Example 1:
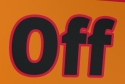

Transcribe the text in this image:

Off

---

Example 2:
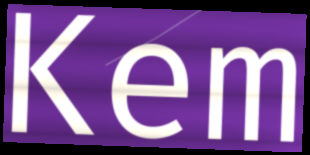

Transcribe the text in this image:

Kem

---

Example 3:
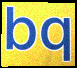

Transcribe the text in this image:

bq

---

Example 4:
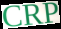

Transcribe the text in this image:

CRP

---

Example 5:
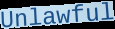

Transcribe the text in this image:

Unlawful